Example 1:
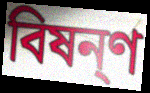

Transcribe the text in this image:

বিষন্ণ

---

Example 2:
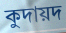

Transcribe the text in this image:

কুদায়দ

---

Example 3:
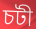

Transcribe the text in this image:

চটী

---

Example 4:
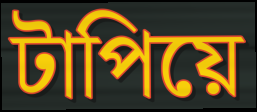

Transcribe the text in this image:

টাপিয়ে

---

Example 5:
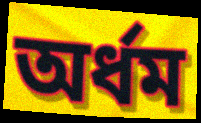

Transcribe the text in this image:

অর্ধম